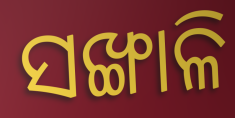
ସଙ୍ଖାଳି